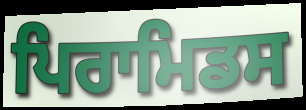
ਪਿਰਾਮਿਡਸ